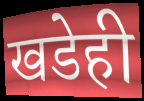
खडेही